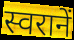
स्वरानें